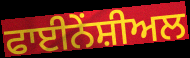
ਫਾਈਨੇਂਸ਼ੀਅਲ